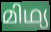
മിഥ്യ